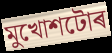
মুখোশটোৰ